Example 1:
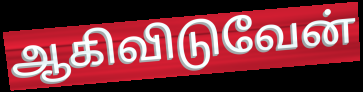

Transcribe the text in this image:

ஆகிவிடுவேன்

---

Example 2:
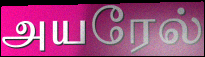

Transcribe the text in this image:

அயரேல்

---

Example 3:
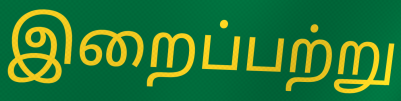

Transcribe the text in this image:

இறைப்பற்று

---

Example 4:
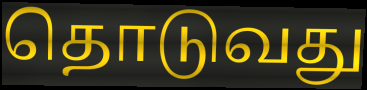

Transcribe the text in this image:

தொடுவது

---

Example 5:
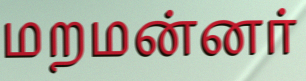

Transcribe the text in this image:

மறமன்னர்